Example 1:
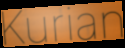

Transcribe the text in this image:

Kurian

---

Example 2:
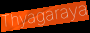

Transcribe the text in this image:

Thyagaraya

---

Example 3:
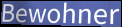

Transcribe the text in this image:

Bewohner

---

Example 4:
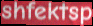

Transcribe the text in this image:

shfektsp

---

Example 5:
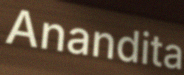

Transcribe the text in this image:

Anandita